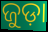
ଜୁଡ଼ା